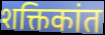
शक्तिकांत